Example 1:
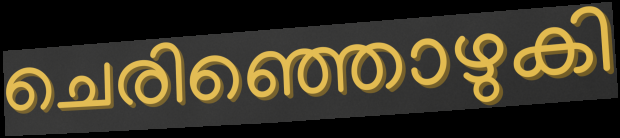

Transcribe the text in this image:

ചെരിഞ്ഞൊഴുകി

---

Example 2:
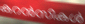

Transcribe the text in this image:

കറൻസികൾ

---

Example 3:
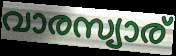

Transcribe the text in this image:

വാരസ്യാര്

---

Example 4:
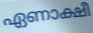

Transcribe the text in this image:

ഏണാക്ഷീ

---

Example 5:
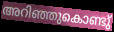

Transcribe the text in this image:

അറിഞ്ഞുകൊണ്ടു്